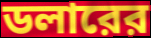
ডলারের